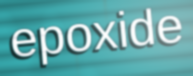
epoxide